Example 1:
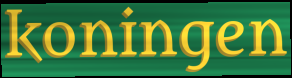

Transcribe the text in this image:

koningen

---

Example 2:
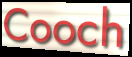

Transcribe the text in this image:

Cooch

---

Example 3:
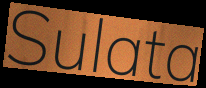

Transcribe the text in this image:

Sulata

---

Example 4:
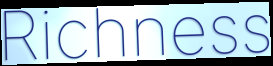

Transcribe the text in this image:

Richness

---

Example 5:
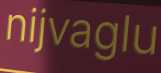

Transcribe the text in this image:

nijvaglu